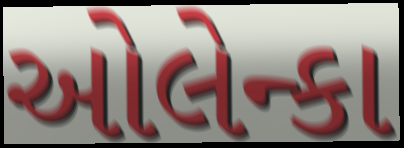
ઓલેન્કા